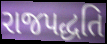
રાજપદ્ધતિ